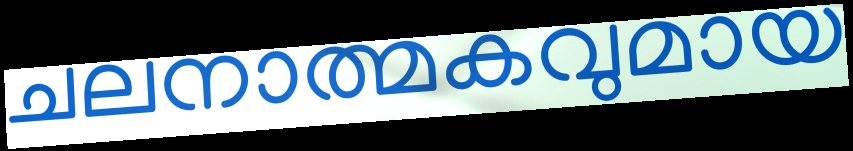
ചലനാത്മകവുമായ